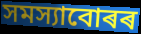
সমস্যাবোৰৰ